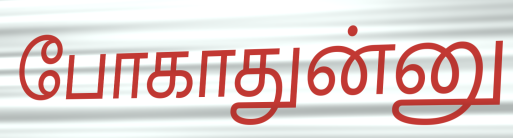
போகாதுன்னு